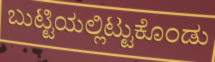
ಬುಟ್ಟಿಯಲ್ಲಿಟ್ಟುಕೊಂಡು